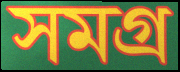
সমগ্ৰ